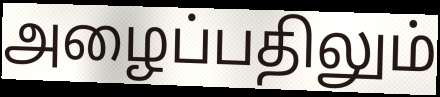
அழைப்பதிலும்